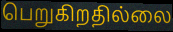
பெறுகிறதில்லை